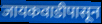
जायकवाडीपासून